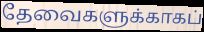
தேவைகளுக்காகப்